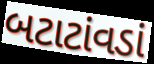
બટાટાંવડાં